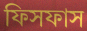
ফিসফাস